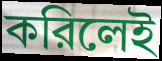
করিলেই